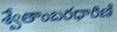
శ్వేతాంబరధారిణి